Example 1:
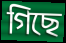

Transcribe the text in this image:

গিছে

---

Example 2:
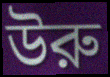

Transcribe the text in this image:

উরু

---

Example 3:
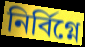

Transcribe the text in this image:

নির্বিগ্নে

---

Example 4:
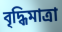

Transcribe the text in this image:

বৃদ্ধিমাত্রা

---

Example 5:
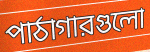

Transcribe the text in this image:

পাঠাগারগুলো